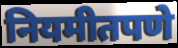
नियमीतपणे